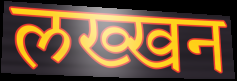
लख्खन